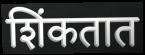
शिंकतात